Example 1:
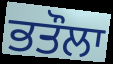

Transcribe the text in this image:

ਭਤੌਲਾ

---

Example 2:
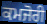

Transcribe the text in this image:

ਕਮਜੋਰੀ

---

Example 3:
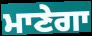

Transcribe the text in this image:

ਮਾਣੇਗਾ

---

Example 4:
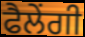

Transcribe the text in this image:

ਫੈਲੇਂਗੀ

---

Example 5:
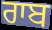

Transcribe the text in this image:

ਰਾਬ